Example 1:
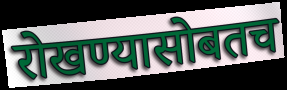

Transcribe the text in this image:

रोखण्यासोबतच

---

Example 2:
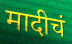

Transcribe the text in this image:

मादीचं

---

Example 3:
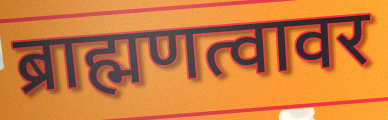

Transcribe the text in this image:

ब्राह्मणत्वावर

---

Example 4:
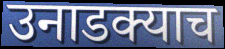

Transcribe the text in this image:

उनाडक्याच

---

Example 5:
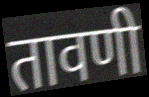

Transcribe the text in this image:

तावणी